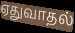
ஏதுவாதல்